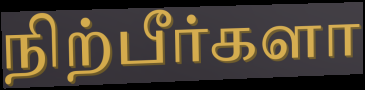
நிற்பீர்களா